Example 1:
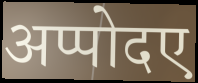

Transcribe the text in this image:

अप्पोदए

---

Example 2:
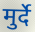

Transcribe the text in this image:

मुर्दे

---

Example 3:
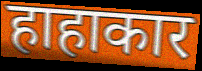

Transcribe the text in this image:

हाहाकार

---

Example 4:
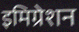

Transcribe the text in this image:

इमिग्रेशन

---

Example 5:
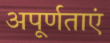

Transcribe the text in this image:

अपूर्णताएं